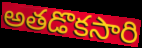
అతడొకసారి